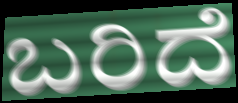
ಬರಿದೆ